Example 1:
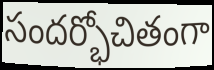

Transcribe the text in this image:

సందర్భోచితంగా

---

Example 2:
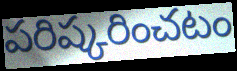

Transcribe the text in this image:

పరిష్కరించటం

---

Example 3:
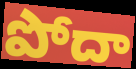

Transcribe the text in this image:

పోదా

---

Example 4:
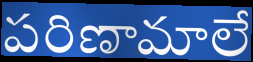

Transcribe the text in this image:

పరిణామాలే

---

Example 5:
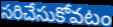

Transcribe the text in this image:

సరిచేసుకోవటం